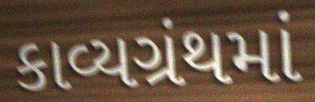
કાવ્યગ્રંથમાં